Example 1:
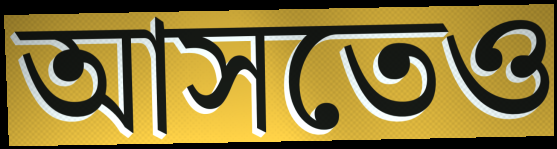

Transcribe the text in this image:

আসতেও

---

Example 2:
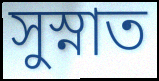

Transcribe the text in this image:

সুস্নাত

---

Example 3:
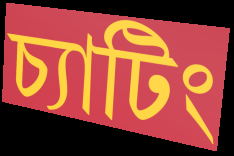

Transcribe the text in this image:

চ্যাটিং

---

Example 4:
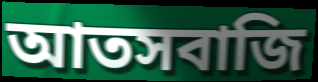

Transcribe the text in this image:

আতসবাজি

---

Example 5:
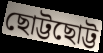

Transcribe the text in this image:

ছোট্টছোট্ট